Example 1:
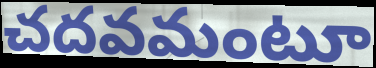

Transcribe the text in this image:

చదవమంటూ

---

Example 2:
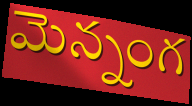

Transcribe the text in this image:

మెన్నంగ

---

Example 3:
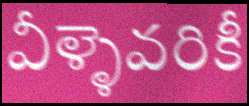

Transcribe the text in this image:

వీళ్ళెవరికీ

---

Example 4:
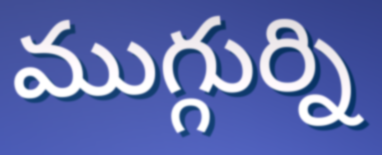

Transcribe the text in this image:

ముగ్గుర్ని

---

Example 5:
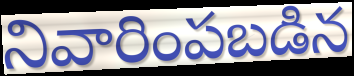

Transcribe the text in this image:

నివారింపబడిన